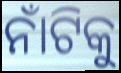
ନାଁଟିକୁ